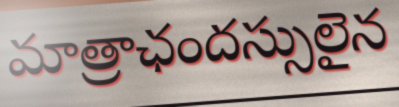
మాత్రాఛందస్సులైన